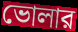
ভোলার